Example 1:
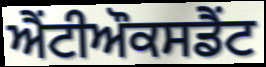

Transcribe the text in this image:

ਐਂਟੀਔਕਸਡੈਂਟ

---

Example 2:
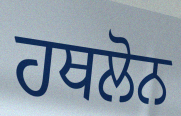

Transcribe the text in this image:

ਹਥਲੋਨ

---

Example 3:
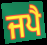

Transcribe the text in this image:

ਜਪੈ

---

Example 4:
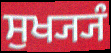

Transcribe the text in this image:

ਸੁਖ੍ਯ੍ਯੰ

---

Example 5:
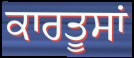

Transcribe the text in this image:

ਕਾਰਤੂਸਾਂ